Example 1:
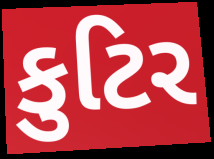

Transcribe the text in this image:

કુટિર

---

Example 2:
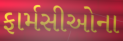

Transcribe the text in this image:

ફાર્મસીઓના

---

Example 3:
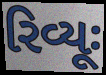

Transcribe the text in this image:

રિવ્યૂઃ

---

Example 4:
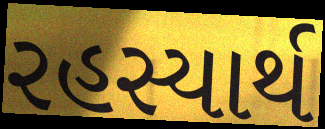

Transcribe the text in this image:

રહસ્યાર્થ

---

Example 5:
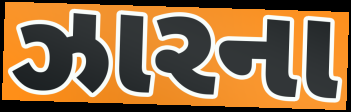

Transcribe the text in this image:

ઝારના